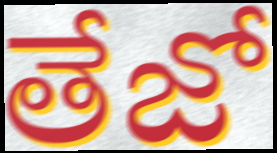
తేజో